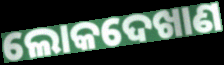
ଲୋକଦେଖାଣ